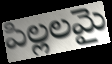
పిల్లలమై